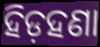
ହିଡ଼ହଣା